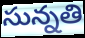
సున్నతి